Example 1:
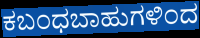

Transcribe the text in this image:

ಕಬಂಧಬಾಹುಗಳಿಂದ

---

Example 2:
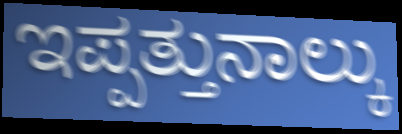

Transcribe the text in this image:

ಇಪ್ಪತ್ತುನಾಲ್ಕು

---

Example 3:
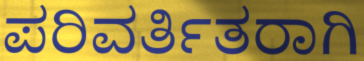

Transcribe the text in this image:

ಪರಿವರ್ತಿತರಾಗಿ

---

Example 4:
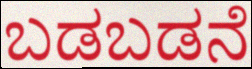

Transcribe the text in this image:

ಬಡಬಡನೆ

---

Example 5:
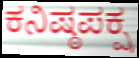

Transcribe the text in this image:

ಕನಿಷ್ಠಪಕ್ಷ